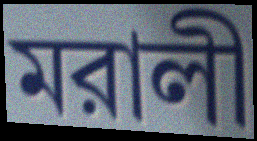
মরালী